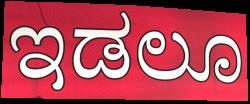
ಇಡಲೂ